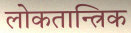
लोकतान्त्रिक